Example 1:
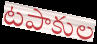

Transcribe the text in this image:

టపాకుల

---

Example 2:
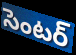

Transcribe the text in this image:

సెంటర్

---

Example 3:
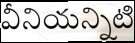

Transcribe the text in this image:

వీనియన్నిటి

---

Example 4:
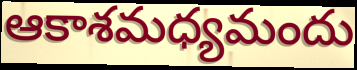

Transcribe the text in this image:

ఆకాశమధ్యమందు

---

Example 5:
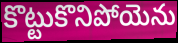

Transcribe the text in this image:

కొట్టుకొనిపోయెను